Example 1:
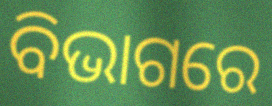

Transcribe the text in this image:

ବିଭାଗରେ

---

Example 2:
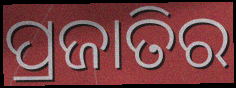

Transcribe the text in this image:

ପ୍ରଜାତିର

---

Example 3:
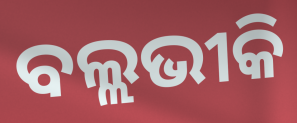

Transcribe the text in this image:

ବଲ୍ଲଭୀକି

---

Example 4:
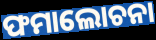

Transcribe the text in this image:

ଫମାଲୋଚନା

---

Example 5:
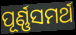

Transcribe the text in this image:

ପୂର୍ଣ୍ଣସମର୍ଥ